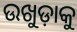
ଉଖୁଡ଼ାକୁ